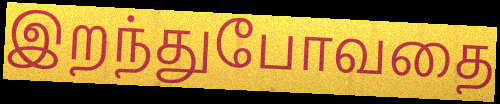
இறந்துபோவதை